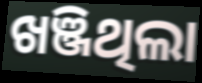
ଖଞ୍ଜିଥିଲା